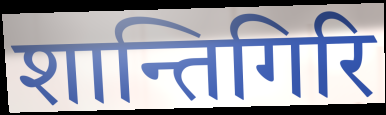
शान्तिगिरि